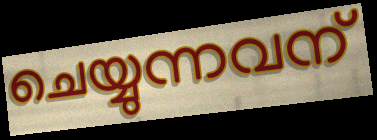
ചെയ്യുന്നവന്